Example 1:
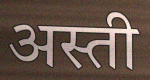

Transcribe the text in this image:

अस्ती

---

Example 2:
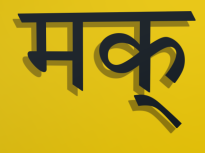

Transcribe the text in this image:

मक्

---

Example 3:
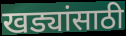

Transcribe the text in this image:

खड्यांसाठी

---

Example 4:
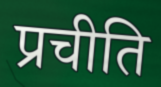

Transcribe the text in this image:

प्रचीति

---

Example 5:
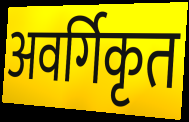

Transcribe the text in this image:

अवर्गिकृत